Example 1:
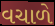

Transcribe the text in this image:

વચાળે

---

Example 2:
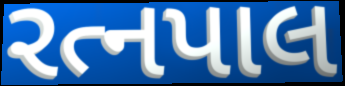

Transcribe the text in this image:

રત્નપાલ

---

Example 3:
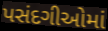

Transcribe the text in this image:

પસંદગીઓમાં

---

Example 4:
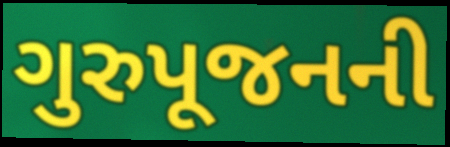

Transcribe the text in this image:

ગુરુપૂજનની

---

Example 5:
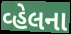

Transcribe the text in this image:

વ્હેલના